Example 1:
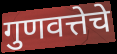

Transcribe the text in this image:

गुणवत्तेचे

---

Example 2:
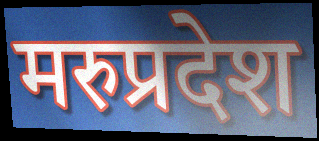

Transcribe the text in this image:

मरुप्रदेश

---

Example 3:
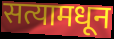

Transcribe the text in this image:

सत्यामधून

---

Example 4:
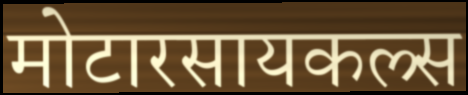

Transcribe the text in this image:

मोटारसायकल्स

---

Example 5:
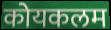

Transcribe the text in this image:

कोयकलम